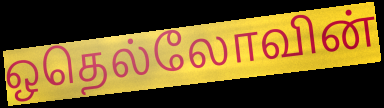
ஒதெல்லோவின்